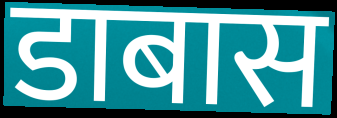
डाबास